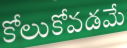
కోలుకోవడమే